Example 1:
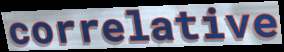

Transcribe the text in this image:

correlative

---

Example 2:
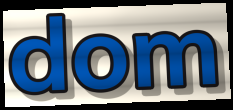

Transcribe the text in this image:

dom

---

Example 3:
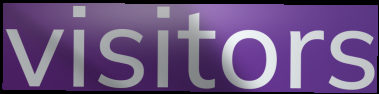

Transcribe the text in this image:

visitors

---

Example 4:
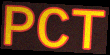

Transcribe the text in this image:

PCT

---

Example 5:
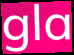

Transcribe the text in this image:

gla